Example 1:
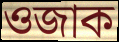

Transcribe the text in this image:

ওজাক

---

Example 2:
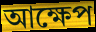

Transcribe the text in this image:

আক্ষেপ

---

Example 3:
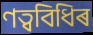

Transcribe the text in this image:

ণত্ববিধিৰ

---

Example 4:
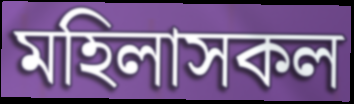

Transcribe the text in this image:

মহিলাসকল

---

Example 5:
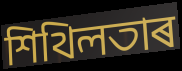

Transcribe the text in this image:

শিথিলতাৰ